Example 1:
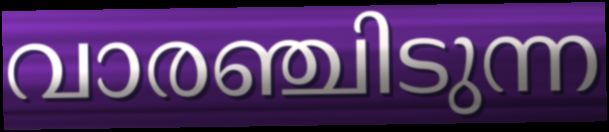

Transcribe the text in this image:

വാരഞ്ചിടുന്ന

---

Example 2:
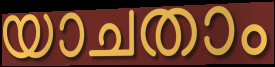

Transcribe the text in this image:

യാചതാം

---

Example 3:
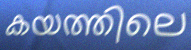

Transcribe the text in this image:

കയത്തിലെ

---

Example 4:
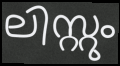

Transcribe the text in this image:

ലിസ്റ്റും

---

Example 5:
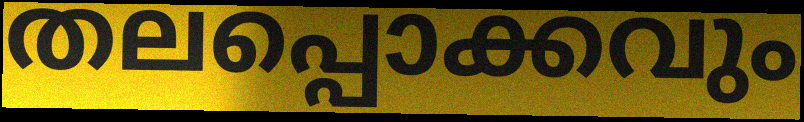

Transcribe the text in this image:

തലപ്പൊക്കവും